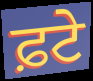
ਫ਼ਟੇ